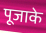
पूजाके